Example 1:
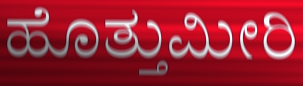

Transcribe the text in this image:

ಹೊತ್ತುಮೀರಿ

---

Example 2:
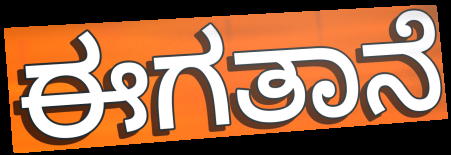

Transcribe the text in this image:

ಈಗತಾನೆ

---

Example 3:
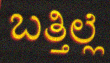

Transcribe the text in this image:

ಬತ್ತಿಲ್ಲೆ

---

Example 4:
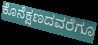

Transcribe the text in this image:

ಕೊನೆಕ್ಷಣದವರೆಗೂ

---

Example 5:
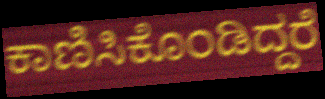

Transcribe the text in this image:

ಕಾಣಿಸಿಕೊಂಡಿದ್ದರೆ